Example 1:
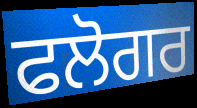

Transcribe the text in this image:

ਫਲੋਗਰ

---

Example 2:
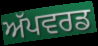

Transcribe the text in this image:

ਅੱਪਵਰਡ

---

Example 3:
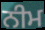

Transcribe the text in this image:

ਨੀਮ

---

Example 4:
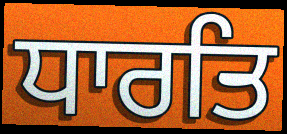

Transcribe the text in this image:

ਧਾਰਤਿ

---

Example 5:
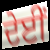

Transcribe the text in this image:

ਦੇਈਂ